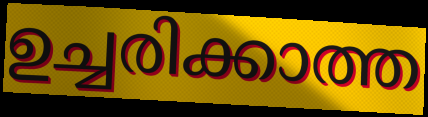
ഉച്ചരിക്കാത്ത